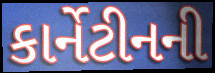
કાર્નેટીનની